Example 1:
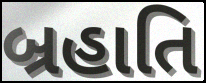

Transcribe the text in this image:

બ્રહાતિ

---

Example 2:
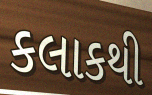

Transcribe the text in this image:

કલાકથી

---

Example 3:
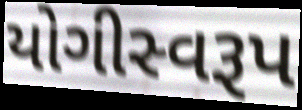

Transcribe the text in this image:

યોગીસ્વરૂપ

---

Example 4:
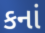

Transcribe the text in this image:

કનાં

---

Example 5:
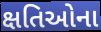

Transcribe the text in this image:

ક્ષતિઓના